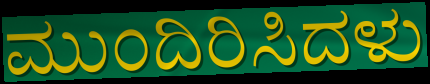
ಮುಂದಿರಿಸಿದಳು